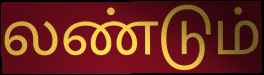
லண்டும்